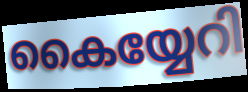
കൈയ്യേറി